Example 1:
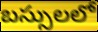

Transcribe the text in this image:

బస్సులలో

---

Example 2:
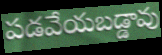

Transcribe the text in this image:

పడవేయబడ్డావు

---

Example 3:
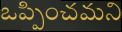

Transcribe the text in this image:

ఒప్పించమని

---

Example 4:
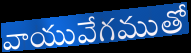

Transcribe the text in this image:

వాయువేగముతో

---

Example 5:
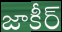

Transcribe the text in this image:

జాకీర్